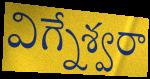
విగ్నేశ్వరా